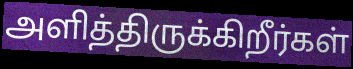
அளித்திருக்கிறீர்கள்